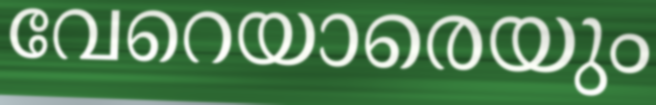
വേറെയാരെയും